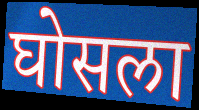
घोसला